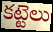
కట్టెలు